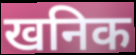
खनिक